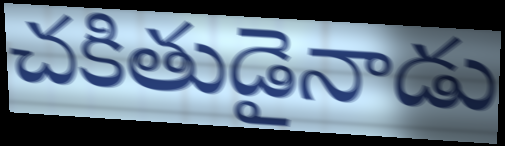
చకితుడైనాడు